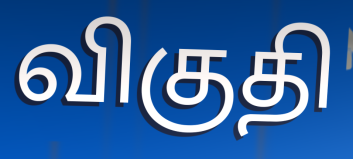
விகுதி